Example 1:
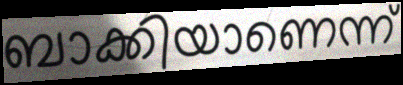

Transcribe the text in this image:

ബാക്കിയാണെന്ന്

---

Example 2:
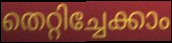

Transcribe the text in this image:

തെറ്റിച്ചേക്കാം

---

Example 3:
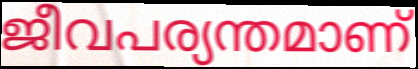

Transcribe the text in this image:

ജീവപര്യന്തമാണ്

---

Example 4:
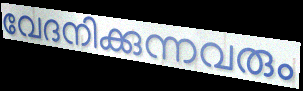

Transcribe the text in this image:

വേദനിക്കുന്നവരും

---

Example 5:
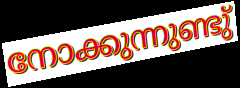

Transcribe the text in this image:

നോക്കുന്നുണ്ടു്